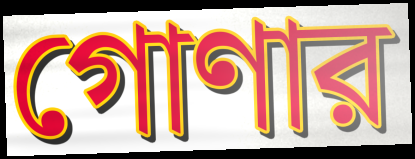
গোণার